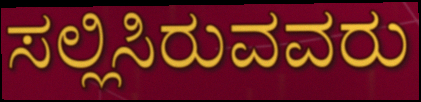
ಸಲ್ಲಿಸಿರುವವರು